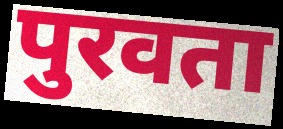
पुरवता